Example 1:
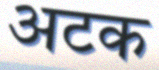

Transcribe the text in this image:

अटक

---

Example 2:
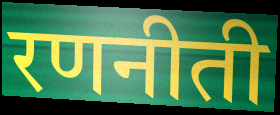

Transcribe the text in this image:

रणनीती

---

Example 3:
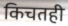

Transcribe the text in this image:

किचतही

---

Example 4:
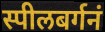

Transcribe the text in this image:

स्पीलबर्गनं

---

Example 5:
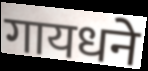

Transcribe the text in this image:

गायधने